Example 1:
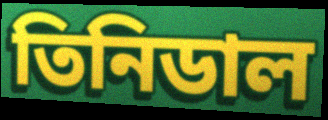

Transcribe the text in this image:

তিনিডাল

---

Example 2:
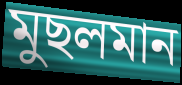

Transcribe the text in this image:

মুছলমান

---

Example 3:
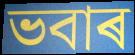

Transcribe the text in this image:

ভবাৰ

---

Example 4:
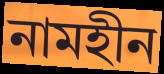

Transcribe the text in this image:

নামহীন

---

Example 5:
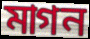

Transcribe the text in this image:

মাগন